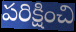
పరిక్షించి